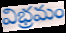
విభ్రమం